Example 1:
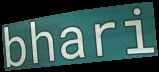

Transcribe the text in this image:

bhari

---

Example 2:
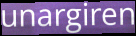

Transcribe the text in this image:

unargiren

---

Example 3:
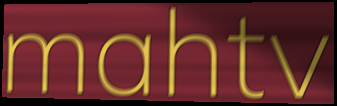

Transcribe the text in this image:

mahtv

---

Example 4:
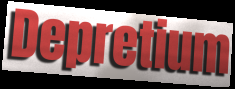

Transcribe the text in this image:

Depretium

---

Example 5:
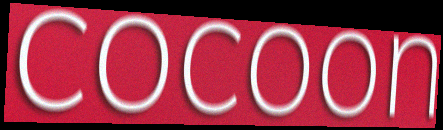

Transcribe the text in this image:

cocoon